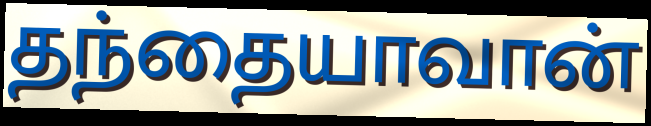
தந்தையாவான்